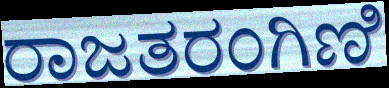
ರಾಜತರಂಗಿಣಿ